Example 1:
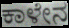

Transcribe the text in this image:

ಕಾಳೇನ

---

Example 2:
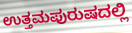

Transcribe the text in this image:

ಉತ್ತಮಪುರುಷದಲ್ಲಿ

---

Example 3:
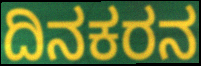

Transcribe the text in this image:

ದಿನಕರನ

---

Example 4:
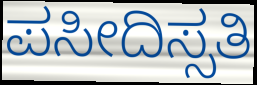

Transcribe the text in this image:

ಪಸೀದಿಸ್ಸತಿ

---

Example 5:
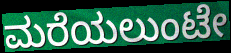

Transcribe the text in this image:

ಮರೆಯಲುಂಟೇ